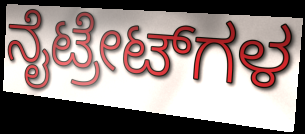
ನೈಟ್ರೇಟ್‌ಗಳ